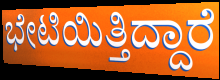
ಭೇಟಿಯಿತ್ತಿದ್ದಾರೆ